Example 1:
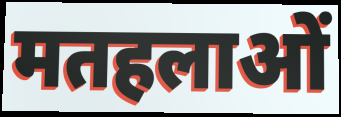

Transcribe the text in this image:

मतहलाओं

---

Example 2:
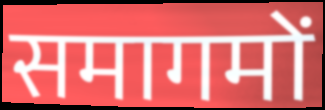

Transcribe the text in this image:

समागमों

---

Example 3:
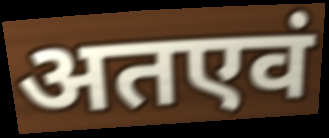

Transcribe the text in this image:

अतएवं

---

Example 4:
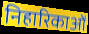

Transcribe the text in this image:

निहारिकाओं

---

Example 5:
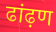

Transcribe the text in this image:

ढांढ़ण